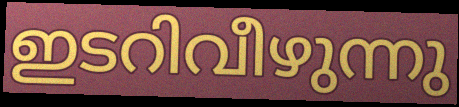
ഇടറിവീഴുന്നു